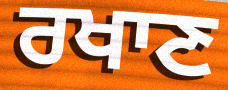
ਰਖਾਣ